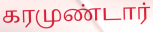
கரமுண்டார்